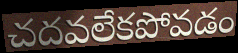
చదవలేకపోవడం